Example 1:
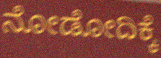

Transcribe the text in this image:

ನೋಡೋದಿಕ್ಕೆ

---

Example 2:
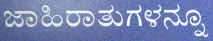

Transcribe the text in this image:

ಜಾಹಿರಾತುಗಳನ್ನೂ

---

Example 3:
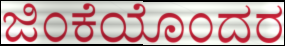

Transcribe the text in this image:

ಜಿಂಕೆಯೊಂದರ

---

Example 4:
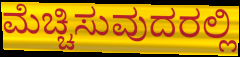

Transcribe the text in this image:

ಮೆಚ್ಚಿಸುವುದರಲ್ಲಿ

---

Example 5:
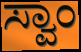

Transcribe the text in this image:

ಸ್ವಾಂ